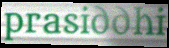
prasiddhi